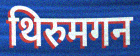
थिरुमगन